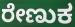
ರೇಣುಕ